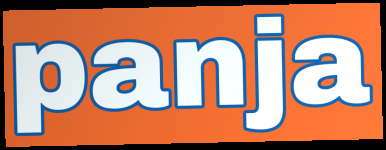
panja